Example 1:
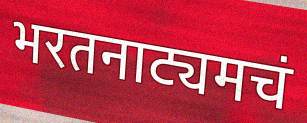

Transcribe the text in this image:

भरतनाट्यमचं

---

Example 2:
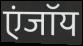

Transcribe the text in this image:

एंजॉय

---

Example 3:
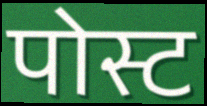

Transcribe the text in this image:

पोस्ट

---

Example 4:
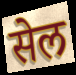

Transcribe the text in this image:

सेल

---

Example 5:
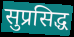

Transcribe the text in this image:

सुप्रसिद्ध